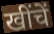
खींचें